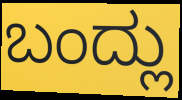
ಬಂದ್ಲು